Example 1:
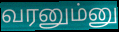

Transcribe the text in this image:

வரனும்னு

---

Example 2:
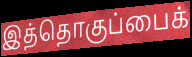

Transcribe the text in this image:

இத்தொகுப்பைக்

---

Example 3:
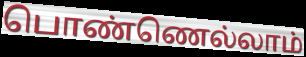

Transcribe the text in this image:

பொண்ணெல்லாம்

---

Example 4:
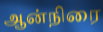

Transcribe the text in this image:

ஆன்நிரை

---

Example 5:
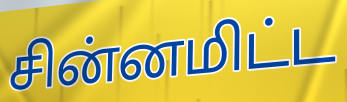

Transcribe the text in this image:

சின்னமிட்ட